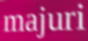
majuri